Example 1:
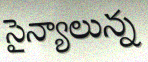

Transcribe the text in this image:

సైన్యాలున్న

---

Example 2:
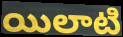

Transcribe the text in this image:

యిలాటి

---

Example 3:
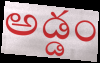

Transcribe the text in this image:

అడ్డం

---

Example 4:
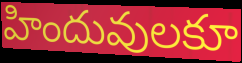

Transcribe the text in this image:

హిందువులకూ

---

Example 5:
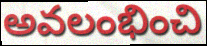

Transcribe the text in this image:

అవలంభించి